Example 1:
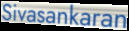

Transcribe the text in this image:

Sivasankaran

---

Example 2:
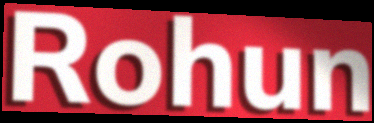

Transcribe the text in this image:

Rohun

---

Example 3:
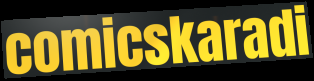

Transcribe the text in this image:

comicskaradi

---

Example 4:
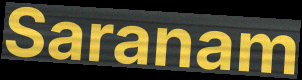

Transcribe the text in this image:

Saranam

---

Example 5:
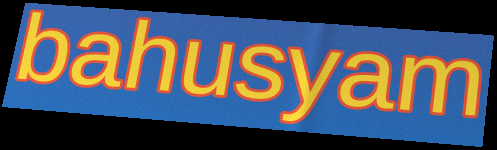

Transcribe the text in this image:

bahusyam